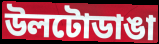
উলটোডাঙা